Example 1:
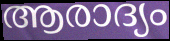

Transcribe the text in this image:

ആരാദ്യം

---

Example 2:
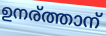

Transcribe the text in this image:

ഉനര്ത്താന്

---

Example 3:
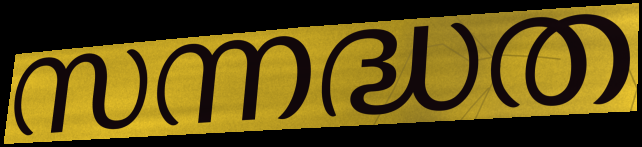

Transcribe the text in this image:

സന്നദ്ധത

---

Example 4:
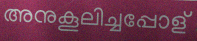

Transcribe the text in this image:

അനുകൂലിച്ചപ്പോള്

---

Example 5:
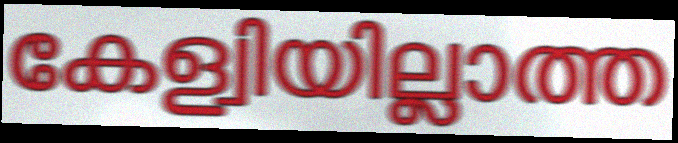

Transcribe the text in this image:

കേള്വിയില്ലാത്ത